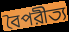
বৈপরীত্য